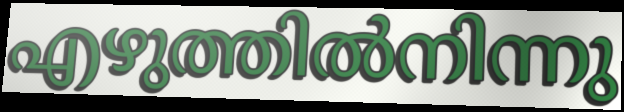
എഴുത്തിൽനിന്നു